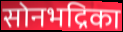
सोनभद्रिका